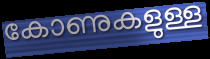
കോണുകളുള്ള